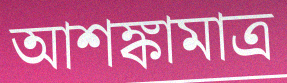
আশঙ্কামাত্র